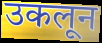
उकलून